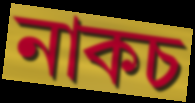
নাকচ